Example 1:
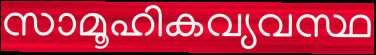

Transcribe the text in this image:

സാമൂഹികവ്യവസ്ഥ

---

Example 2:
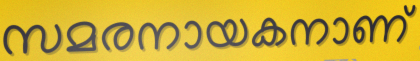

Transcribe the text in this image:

സമരനായകനാണ്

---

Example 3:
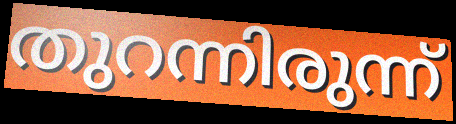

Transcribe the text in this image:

തുറന്നിരുന്ന്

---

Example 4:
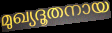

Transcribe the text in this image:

മുഖ്യദൂതനായ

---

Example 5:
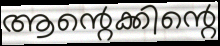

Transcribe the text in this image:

ആന്റെക്കിന്റെ